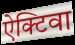
ऐक्टिवा